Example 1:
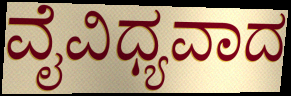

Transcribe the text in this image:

ವೈವಿಧ್ಯವಾದ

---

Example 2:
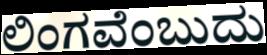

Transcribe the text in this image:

ಲಿಂಗವೆಂಬುದು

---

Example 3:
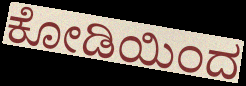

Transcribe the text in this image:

ಕೋಡಿಯಿಂದ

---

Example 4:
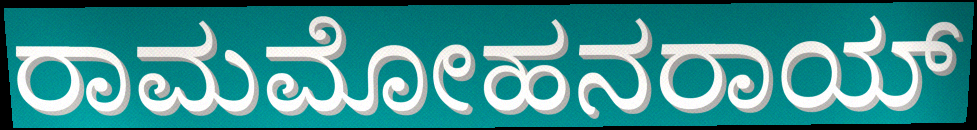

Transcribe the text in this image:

ರಾಮಮೋಹನರಾಯ್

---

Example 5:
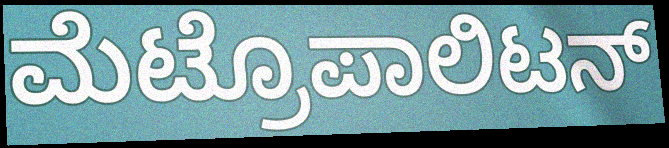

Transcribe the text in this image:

ಮೆಟ್ರೊಪಾಲಿಟನ್